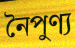
নৈপুণ্য